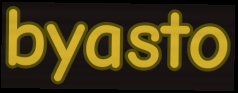
byasto